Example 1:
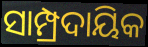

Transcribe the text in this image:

ସାମ୍ପ୍ରଦାୟିକ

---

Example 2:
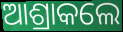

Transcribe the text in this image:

ଆଶ୍ରାକଲେ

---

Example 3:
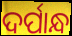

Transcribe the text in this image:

ଦର୍ପାନ୍ଧ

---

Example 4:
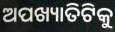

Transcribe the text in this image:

ଅପଖ୍ୟାତିଟିକୁ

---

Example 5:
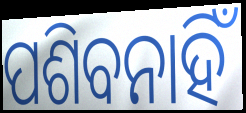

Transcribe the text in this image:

ପଶିବନାହିଁ